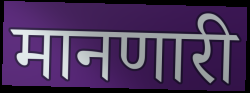
मानणारी